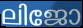
ലിജോ